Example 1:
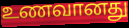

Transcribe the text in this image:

உணவானது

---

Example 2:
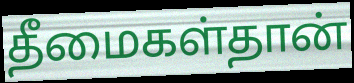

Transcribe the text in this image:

தீமைகள்தான்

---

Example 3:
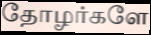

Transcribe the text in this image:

தோழர்களே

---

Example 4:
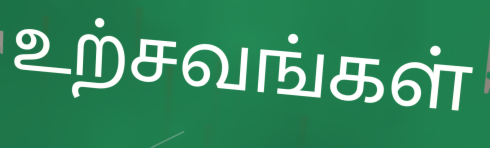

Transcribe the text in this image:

உற்சவங்கள்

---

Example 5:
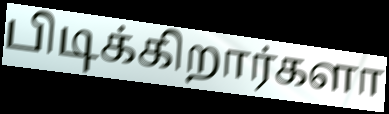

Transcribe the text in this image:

பிடிக்கிறார்களா